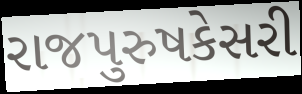
રાજપુરુષકેસરી